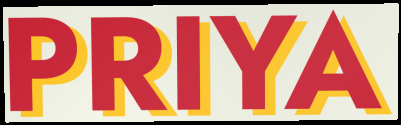
PRIYA